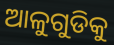
ଆଳୁଗୁଡିକୁ